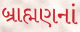
બ્રાહ્મણનાં